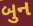
બુન